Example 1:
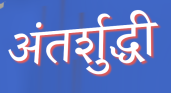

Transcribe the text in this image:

अंतर्शुद्धी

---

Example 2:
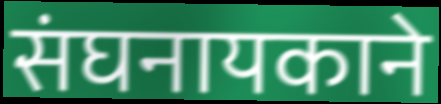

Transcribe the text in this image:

संघनायकाने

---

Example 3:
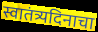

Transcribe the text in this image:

स्वातंत्र्यदिनाचा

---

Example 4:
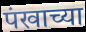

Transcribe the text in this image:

पंखाच्या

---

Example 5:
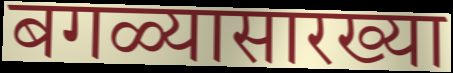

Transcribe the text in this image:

बगळ्यासारख्या